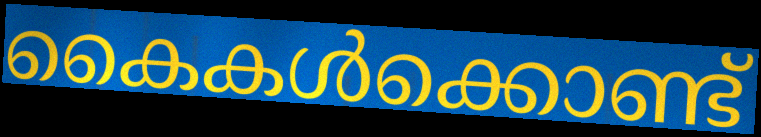
കൈകൾക്കൊണ്ട്